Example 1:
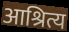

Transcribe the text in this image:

आश्रित्य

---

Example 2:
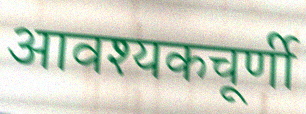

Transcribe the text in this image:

आवश्यकचूर्णी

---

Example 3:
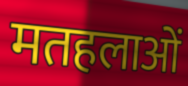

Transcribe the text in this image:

मतहलाओं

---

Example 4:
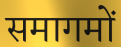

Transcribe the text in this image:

समागमों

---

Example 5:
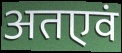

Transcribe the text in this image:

अतएवं